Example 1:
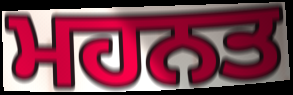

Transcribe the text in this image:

ਮਹਨਤ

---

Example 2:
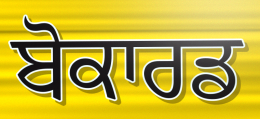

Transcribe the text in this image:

ਬੋਕਾਰਡ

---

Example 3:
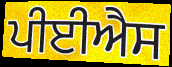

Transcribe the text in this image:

ਪੀਈਐਸ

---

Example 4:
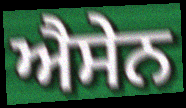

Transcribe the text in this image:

ਐਸੇਨ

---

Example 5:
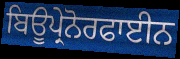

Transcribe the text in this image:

ਬਿਊਪ੍ਰੇਨੋਰਫਾਈਨ